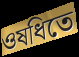
ওষধিতে